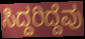
ಸಿದ್ದರಿದ್ದೆವು